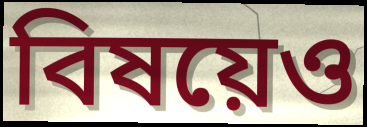
বিষয়েও